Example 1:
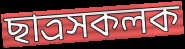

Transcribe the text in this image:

ছাত্ৰসকলক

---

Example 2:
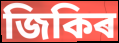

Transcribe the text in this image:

জিকিৰ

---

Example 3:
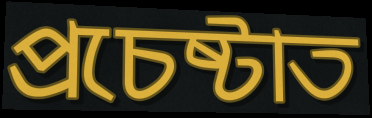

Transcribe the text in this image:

প্ৰচেষ্টাত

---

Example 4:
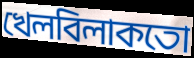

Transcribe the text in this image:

খেলবিলাকতো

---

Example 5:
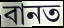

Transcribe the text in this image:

বানত